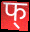
फ्